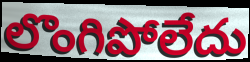
లొంగిపోలేదు